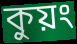
কুয়ং